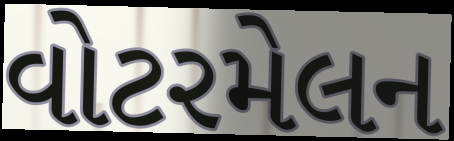
વોટરમેલન